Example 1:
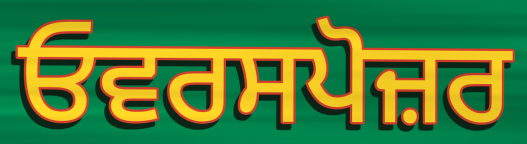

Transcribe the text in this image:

ਓਵਰਸਪੋਜ਼ਰ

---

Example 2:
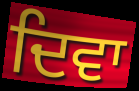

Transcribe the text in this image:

ਦਿਵਾ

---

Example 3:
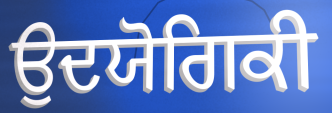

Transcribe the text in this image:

ਉਦਯੋਗਿਕੀ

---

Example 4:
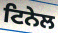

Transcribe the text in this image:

ਟਿਨੇਲ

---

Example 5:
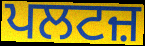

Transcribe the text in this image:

ਪਲਟਜ਼